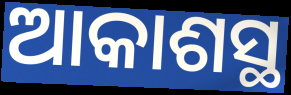
ଆକାଶସ୍ଥ